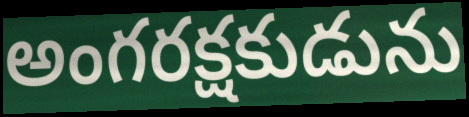
అంగరక్షకుడును